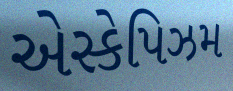
એસ્કેપિઝમ